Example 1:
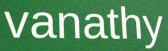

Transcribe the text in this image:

vanathy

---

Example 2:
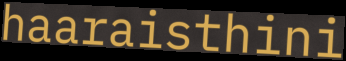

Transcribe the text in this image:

haaraisthini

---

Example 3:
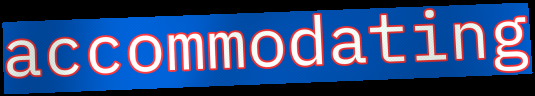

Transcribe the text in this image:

accommodating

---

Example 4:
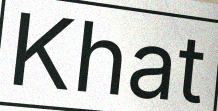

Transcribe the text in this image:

Khat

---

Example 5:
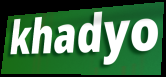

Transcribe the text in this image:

khadyo